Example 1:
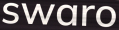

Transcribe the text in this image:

swaro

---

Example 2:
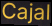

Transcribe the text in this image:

Cajal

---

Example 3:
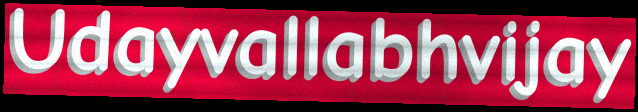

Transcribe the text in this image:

Udayvallabhvijay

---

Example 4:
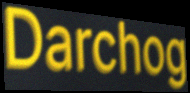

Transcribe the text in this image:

Darchog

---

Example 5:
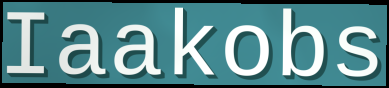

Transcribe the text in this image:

Iaakobs